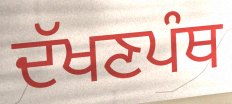
ਦੱਖਣਪੰਥ